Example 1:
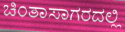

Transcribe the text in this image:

ಚಿಂತಾಸಾಗರದಲ್ಲಿ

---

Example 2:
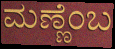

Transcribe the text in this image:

ಮಣ್ಣೆಂಬ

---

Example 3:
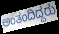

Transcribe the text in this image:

ಅಂತಂದಿದ್ದರು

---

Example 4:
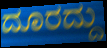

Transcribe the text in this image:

ದೂರದ್ದು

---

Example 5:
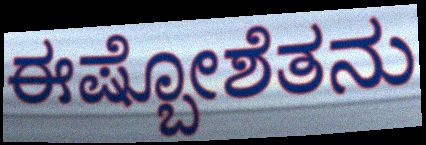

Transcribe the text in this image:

ಈಷ್ಬೋಶೆತನು